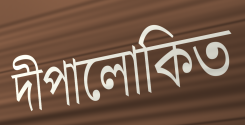
দীপালোকিত